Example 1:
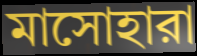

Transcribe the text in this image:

মাসোহারা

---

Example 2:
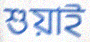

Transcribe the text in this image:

শুয়াই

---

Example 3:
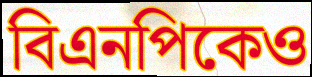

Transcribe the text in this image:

বিএনপিকেও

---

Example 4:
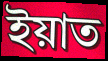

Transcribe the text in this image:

ইয়াত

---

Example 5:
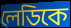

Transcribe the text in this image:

লেডিকে